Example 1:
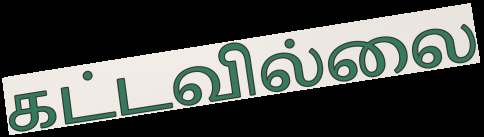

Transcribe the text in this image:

கட்டவில்லை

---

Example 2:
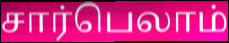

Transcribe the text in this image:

சார்பெலாம்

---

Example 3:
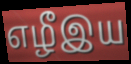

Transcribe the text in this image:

எழீஇய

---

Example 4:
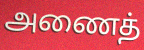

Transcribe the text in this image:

அணைத்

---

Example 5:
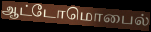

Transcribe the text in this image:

ஆட்டோமொபைல்